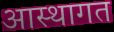
आस्थागत